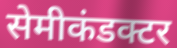
सेमीकंडक्टर